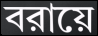
বরায়ে